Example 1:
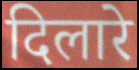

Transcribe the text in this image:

दिलारे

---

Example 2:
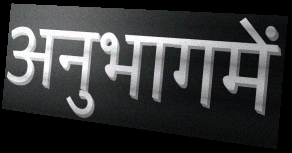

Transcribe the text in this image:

अनुभागमें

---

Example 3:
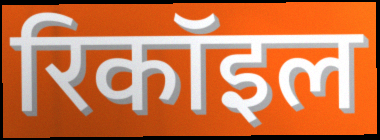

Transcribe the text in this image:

रिकॉइल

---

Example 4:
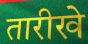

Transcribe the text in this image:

तारीखे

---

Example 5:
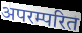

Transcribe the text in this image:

अपरम्परित